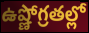
ఉష్ణోగ్రతల్లో